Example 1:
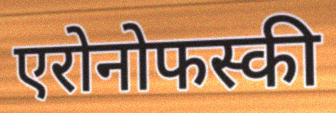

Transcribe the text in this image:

एरोनोफस्की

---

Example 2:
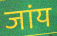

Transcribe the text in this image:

जांय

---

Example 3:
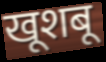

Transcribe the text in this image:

खूशबू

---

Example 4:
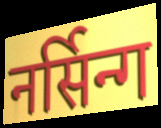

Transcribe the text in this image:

नर्सिन्ग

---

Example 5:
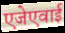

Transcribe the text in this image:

एजेएवाई